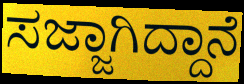
ಸಜ್ಜಾಗಿದ್ದಾನೆ